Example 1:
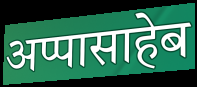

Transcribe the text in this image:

अप्पासाहेब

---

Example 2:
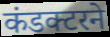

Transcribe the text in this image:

कंडक्टरने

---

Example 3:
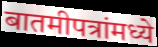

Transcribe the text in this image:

बातमीपत्रांमध्ये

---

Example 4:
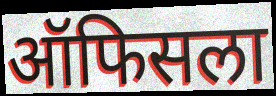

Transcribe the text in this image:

ऑफिसला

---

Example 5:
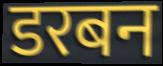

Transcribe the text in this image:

डरबन